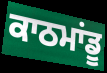
ਕਾਠਮਾਂਡੂ